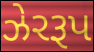
ઝેરરૂપ